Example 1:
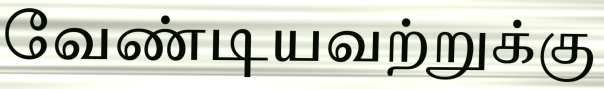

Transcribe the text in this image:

வேண்டியவற்றுக்கு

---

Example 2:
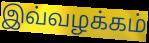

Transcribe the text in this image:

இவ்வழக்கம்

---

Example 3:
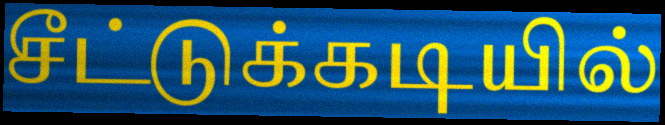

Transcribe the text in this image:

சீட்டுக்கடியில்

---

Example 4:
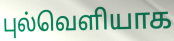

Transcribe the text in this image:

புல்வெளியாக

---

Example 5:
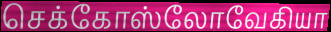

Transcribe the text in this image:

செக்கோஸ்லோவேகியா